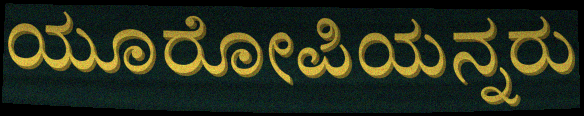
ಯೂರೋಪಿಯನ್ನರು